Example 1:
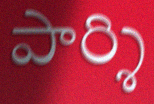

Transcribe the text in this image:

పార్శి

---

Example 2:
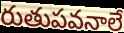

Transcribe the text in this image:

రుతుపవనాలే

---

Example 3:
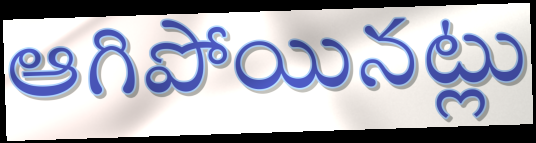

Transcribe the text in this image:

ఆగిపోయినట్లు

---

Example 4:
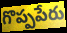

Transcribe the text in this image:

గొప్పపేరు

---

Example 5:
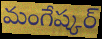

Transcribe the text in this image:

మంగేష్కర్